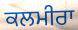
ਕਲਮੀਰਾ